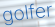
golfer